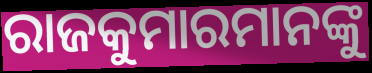
ରାଜକୁମାରମାନଙ୍କୁ